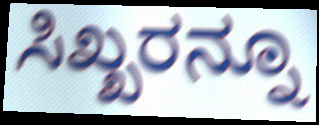
ಸಿಖ್ಖರನ್ನೂ